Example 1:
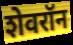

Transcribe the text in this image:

शेवरॉन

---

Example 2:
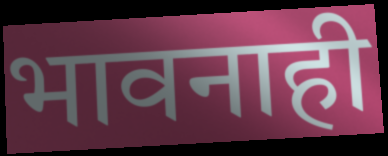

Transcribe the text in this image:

भावनाही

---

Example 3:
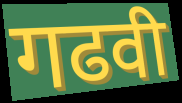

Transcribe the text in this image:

गढवी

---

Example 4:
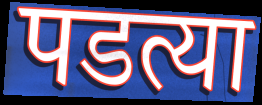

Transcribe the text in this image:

पडत्या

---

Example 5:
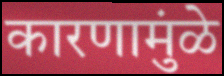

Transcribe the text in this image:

कारणामुंळे